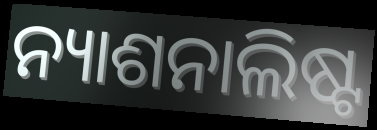
ନ୍ୟାଶନାଲିଷ୍ଟ